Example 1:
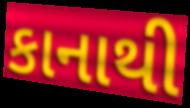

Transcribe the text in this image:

કાનાથી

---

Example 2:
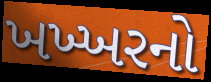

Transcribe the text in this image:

ખખ્ખરનો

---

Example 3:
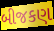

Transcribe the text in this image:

બીજકણ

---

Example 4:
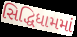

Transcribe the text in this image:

સિદ્ધિધામમાં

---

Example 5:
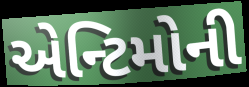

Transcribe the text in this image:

એન્ટિમોની